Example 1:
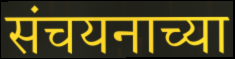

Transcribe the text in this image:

संचयनाच्या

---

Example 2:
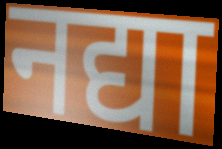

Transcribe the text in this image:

नद्या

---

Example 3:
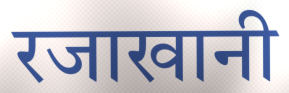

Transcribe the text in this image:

रजाखानी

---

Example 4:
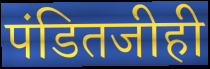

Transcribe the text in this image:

पंडितजीही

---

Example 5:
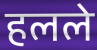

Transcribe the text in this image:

हलले